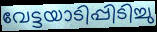
വേട്ടയാടിപ്പിടിച്ചു